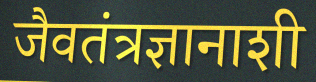
जैवतंत्रज्ञानाशी